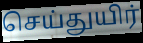
செய்துயிர்